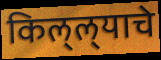
किल्ल्याचे